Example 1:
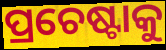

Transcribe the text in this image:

ପ୍ରଚେଷ୍ଟାକୁ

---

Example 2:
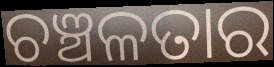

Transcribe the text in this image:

ଚଞ୍ଚଳତାର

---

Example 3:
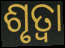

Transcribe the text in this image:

ଶୃତ୍ୱା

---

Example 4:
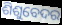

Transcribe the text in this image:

ଶିଶୁବେଦର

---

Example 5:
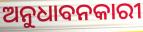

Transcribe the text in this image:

ଅନୁଧାବନକାରୀ